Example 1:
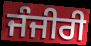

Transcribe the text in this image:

ਜੰਜੀਰੀ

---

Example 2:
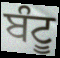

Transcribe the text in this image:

ਬੰਟੂ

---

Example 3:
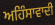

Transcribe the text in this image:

ਅਹਿੰਸਾਵਾਦੀ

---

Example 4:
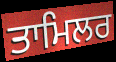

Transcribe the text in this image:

ਤਾਮਿਲਰ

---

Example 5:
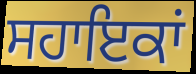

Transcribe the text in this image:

ਸਹਾਇਕਾਂ